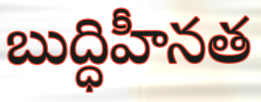
బుద్ధిహీనత